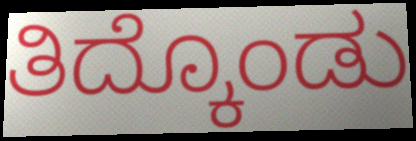
ತಿದ್ಕೊಂಡು